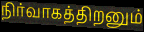
நிர்வாகத்திறனும்